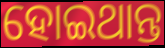
ହୋଇଥାନ୍ତ